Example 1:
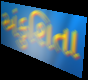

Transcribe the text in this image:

અંકુશિતા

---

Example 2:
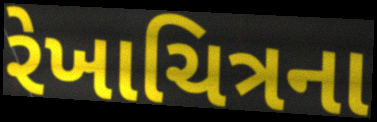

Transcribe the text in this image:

રેખાચિત્રના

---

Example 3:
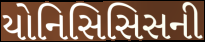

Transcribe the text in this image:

યોનિસિસિસની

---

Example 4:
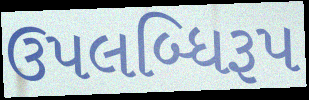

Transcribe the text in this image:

ઉપલબ્ધિરૂપ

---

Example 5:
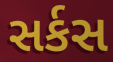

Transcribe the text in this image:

સર્કસ